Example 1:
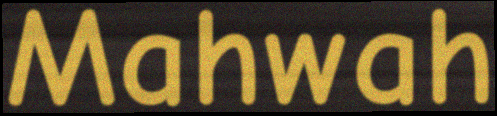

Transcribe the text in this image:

Mahwah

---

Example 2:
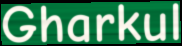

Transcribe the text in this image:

Gharkul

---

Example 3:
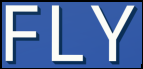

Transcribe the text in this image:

FLY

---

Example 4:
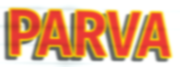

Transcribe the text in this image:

PARVA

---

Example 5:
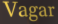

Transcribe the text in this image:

Vagar